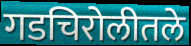
गडचिरोलीतले